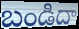
బండిదా